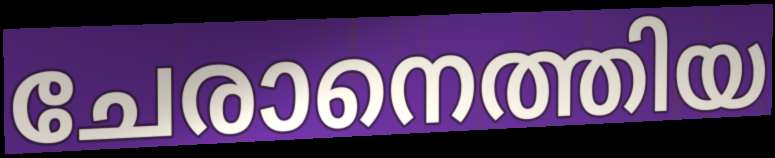
ചേരാനെത്തിയ